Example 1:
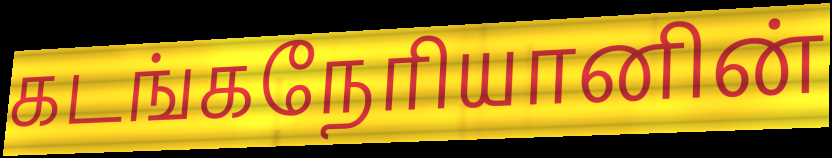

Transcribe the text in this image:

கடங்கநேரியானின்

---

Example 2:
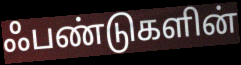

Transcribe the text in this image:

ஃபண்டுகளின்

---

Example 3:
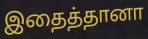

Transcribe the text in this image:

இதைத்தானா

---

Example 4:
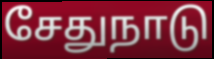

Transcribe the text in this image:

சேதுநாடு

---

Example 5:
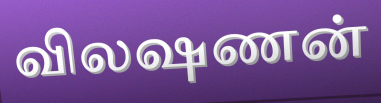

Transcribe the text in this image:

விலஷணன்